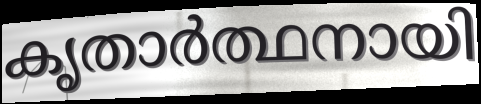
കൃതാർത്ഥനായി